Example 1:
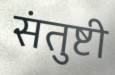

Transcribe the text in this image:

संतुष्टी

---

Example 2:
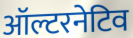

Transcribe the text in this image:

ऑल्टरनेटिव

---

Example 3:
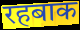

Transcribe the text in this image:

रहबाक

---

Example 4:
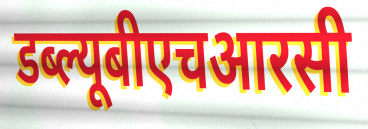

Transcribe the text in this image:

डब्ल्यूबीएचआरसी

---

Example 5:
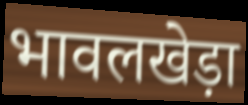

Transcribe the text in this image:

भावलखेड़ा